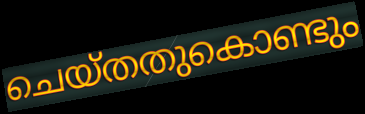
ചെയ്തതുകൊണ്ടും